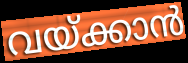
വയ്ക്കാൻ